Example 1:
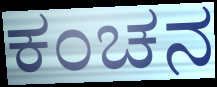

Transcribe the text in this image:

ಕಂಚನ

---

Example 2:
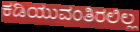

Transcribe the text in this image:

ಕಡಿಯುವಂತಿರಲಿಲ್ಲ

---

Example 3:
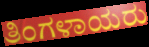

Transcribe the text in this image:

ತಿಂಗಳಾಯರು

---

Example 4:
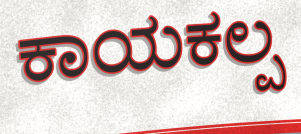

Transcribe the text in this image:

ಕಾಯಕಲ್ಪ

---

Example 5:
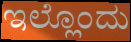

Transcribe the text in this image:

ಇಲ್ಲೊಂದು